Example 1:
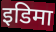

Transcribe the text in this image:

इडिमा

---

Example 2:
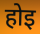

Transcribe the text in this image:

होइ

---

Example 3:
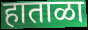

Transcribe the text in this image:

हाताळा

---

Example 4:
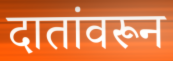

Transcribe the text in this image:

दातांवरून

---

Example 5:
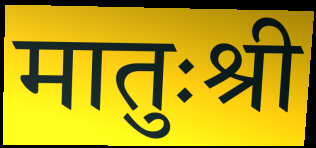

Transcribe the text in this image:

मातुःश्री